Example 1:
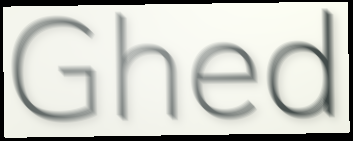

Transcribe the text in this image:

Ghed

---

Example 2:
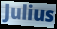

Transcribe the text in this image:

Julius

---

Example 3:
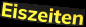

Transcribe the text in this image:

Eiszeiten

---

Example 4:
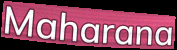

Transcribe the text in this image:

Maharana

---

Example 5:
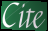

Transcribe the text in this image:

Cite